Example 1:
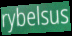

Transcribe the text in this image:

rybelsus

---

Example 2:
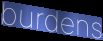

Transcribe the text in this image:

burdens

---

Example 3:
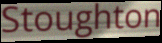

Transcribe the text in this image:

Stoughton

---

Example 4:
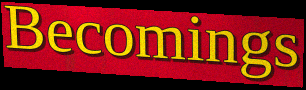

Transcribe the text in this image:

Becomings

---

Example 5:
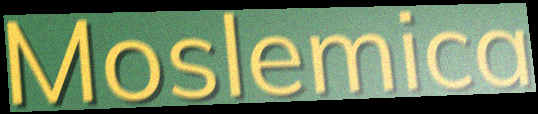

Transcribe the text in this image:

Moslemica